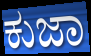
ಕುಜಾ